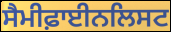
ਸੈਮੀਫ਼ਾਈਨਲਿਸਟ